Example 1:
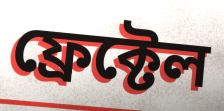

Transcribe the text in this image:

ফ্ৰেক্টেল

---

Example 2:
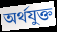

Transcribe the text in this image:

অৰ্থযুক্ত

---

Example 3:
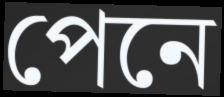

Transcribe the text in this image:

পেনে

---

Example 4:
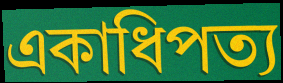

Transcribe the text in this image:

একাধিপত্য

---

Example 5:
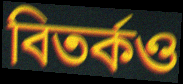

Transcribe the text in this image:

বিতৰ্কও